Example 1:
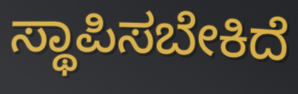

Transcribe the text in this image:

ಸ್ಥಾಪಿಸಬೇಕಿದೆ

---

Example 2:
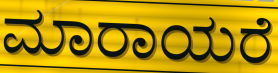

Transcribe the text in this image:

ಮಾರಾಯರೆ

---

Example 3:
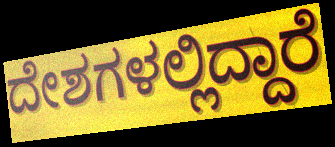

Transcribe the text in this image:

ದೇಶಗಳಲ್ಲಿದ್ದಾರೆ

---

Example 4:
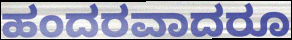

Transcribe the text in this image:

ಹಂದರವಾದರೂ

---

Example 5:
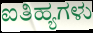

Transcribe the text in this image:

ಐತಿಹ್ಯಗಳು